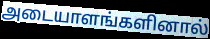
அடையாளங்களினால்